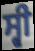
ਸ੍ਵੀ